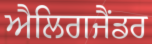
ਐਲਿਗਜੈਂਡਰ